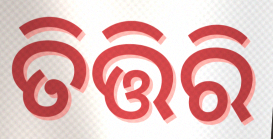
ତିତ୍ତିରି